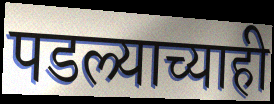
पडल्याच्याही